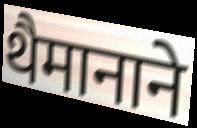
थैमानाने